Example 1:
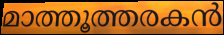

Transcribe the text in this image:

മാത്തൂത്തരകൻ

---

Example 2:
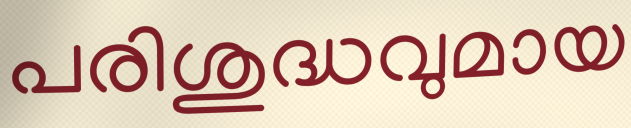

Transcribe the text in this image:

പരിശുദ്ധവുമായ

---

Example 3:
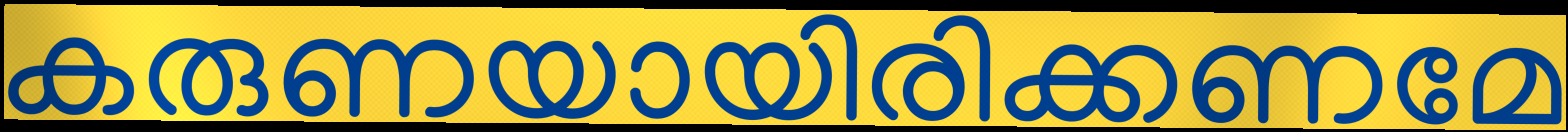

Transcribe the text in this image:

കരുണയായിരിക്കണമേ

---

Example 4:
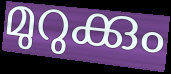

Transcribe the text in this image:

മുറുക്കും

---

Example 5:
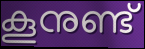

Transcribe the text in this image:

കൂനുണ്ട്